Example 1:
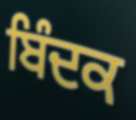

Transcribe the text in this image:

ਬਿੰਦਕ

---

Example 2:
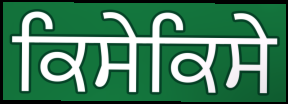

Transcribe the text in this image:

ਕਿਸੇਕਿਸੇ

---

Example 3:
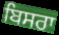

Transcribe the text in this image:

ਬਿਸਰਾ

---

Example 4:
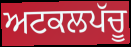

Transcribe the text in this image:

ਅਟਕਲਪੱਚੂ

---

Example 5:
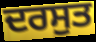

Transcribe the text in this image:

ਦਰਸੁਤ